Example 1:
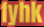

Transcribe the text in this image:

fyhk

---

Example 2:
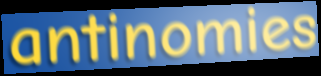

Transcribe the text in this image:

antinomies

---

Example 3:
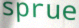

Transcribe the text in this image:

sprue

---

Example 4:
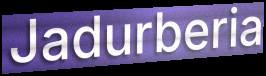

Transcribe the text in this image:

Jadurberia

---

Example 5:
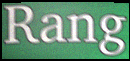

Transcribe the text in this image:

Rang